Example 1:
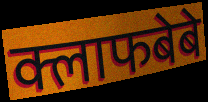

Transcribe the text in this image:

क्लाफबेबे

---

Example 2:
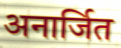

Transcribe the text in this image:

अनार्जित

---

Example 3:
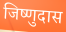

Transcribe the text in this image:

जिष्णुदास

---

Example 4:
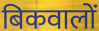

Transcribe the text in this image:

बिकवालों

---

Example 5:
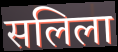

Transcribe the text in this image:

सलिला